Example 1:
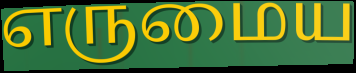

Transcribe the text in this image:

எருமைய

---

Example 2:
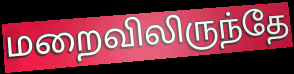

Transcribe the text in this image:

மறைவிலிருந்தே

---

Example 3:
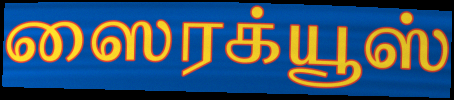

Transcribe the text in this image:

ஸைரக்யூஸ்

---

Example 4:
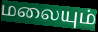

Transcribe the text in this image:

மலையும்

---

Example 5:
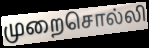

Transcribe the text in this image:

முறைசொல்லி